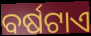
ବର୍ଷଟାଏ